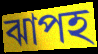
ঝাপহ